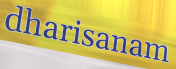
dharisanam